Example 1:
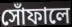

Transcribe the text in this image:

সোঁফালে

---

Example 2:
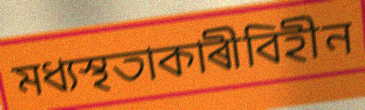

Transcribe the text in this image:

মধ্যস্থতাকাৰীবিহীন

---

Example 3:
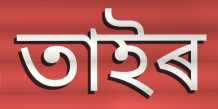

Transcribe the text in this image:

তাইৰ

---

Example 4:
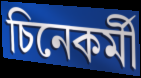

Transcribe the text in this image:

চিনেকৰ্মী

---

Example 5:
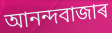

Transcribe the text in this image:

আনন্দবাজাৰ